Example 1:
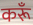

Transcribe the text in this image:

करूँ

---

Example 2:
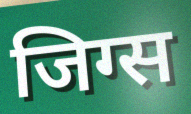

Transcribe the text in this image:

जिग्स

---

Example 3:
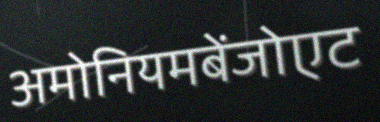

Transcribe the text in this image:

अमोनियमबेंजोएट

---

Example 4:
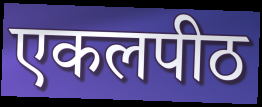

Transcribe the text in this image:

एकलपीठ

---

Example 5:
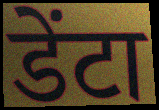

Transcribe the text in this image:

डेंटा